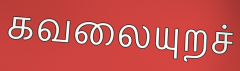
கவலையுறச்